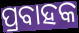
ପ୍ରବାହକ